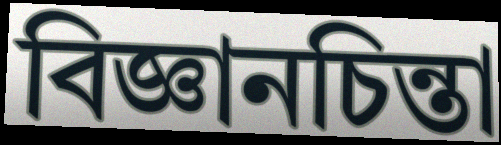
বিজ্ঞানচিন্তা